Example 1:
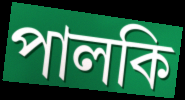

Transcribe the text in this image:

পালকি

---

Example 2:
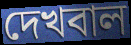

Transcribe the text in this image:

দেখবাল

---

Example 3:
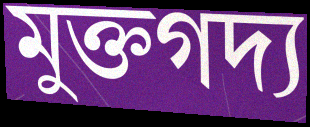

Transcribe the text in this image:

মুক্তগদ্য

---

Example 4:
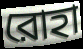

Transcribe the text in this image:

রোহা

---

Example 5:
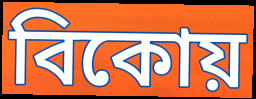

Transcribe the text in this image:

বিকোয়